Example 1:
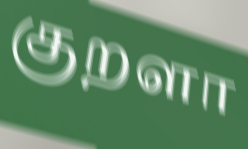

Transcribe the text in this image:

குறளா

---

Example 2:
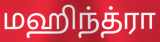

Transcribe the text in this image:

மஹிந்த்ரா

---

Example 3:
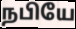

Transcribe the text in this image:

நபியே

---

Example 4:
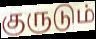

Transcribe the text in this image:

குருடும்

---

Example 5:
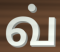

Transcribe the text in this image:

வ்